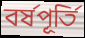
বর্ষপূর্তি